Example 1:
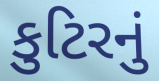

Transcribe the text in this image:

કુટિરનું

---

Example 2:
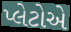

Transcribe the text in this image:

પ્લેટોએ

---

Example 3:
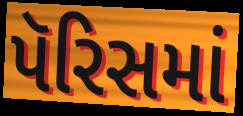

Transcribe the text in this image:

પૅરિસમાં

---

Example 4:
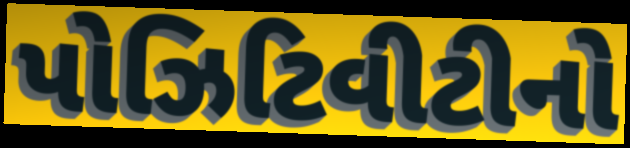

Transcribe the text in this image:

પોઝિટિવીટીનો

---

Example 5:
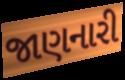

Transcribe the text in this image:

જાણનારી